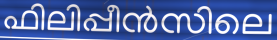
ഫിലിപ്പീൻസിലെ